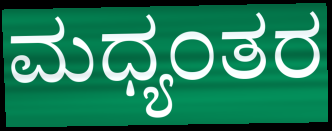
ಮಧ್ಯಂತರ